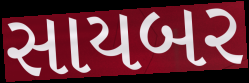
સાયબર